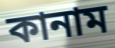
কানাম